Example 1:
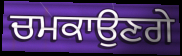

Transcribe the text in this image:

ਚਮਕਾਉਣਗੇ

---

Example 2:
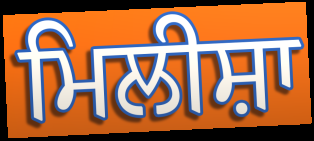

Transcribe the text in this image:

ਮਿਲੀਸ਼ਾ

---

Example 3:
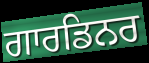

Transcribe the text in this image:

ਗਾਰਡਿਨਰ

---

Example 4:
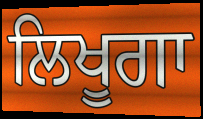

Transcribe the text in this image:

ਲਿਖੂਗਾ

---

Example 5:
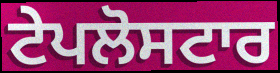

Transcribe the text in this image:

ਟੇਪਲੋਸਟਾਰ